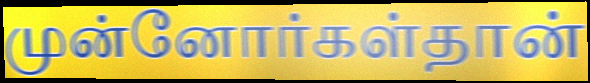
முன்னோர்கள்தான்